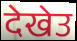
देखेउ